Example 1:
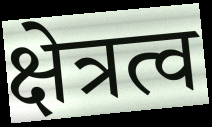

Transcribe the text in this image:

क्षेत्रत्व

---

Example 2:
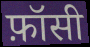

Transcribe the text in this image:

फ़ॉसी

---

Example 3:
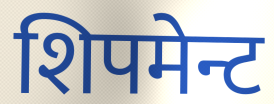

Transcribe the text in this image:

शिपमेन्ट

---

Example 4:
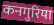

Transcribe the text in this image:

कनगुरिया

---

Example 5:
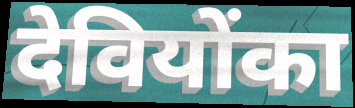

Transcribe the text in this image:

देवियोंका